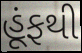
હૂંફથી